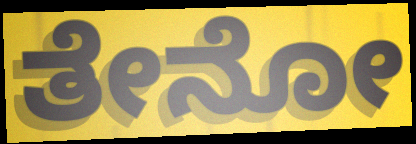
ತೇನೋ